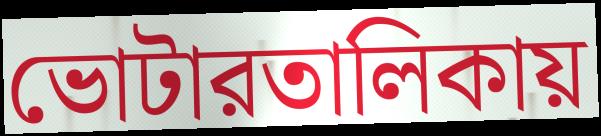
ভোটারতালিকায়